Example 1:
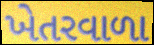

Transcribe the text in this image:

ખેતરવાળા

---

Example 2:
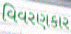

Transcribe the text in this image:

વિવરણકાર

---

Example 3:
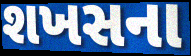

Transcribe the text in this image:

શખસના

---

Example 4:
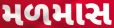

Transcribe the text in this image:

મળમાસ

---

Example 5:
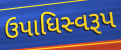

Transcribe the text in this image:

ઉપાધિસ્વરૂપ